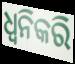
ଧ୍ୱନିକରି